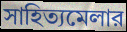
সাহিত্যমেলার